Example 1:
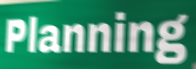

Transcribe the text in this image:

Planning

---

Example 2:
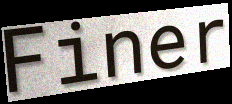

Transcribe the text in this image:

Finer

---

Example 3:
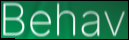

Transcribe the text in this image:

Behav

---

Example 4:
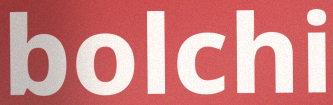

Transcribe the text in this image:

bolchi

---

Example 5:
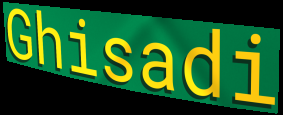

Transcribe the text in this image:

Ghisadi